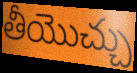
తీయొచ్చు